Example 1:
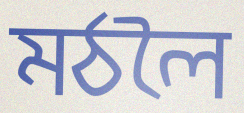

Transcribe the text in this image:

মঠলৈ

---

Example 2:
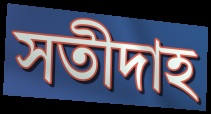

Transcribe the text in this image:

সতীদাহ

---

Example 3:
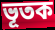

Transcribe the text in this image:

ভূতক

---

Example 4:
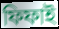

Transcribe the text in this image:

ফিফাই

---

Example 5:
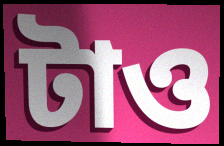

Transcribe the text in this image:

টাও